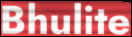
Bhulite